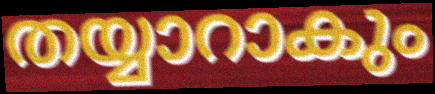
തയ്യാറാകും